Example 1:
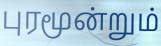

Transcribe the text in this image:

புரமூன்றும்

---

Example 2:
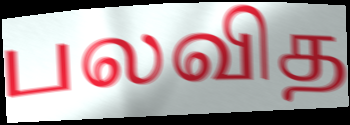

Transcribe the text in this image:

பலவித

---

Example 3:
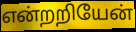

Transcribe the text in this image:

என்றறியேன்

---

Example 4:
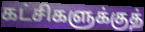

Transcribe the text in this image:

கட்சிகளுக்குத்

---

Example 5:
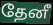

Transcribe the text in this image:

தேனீ